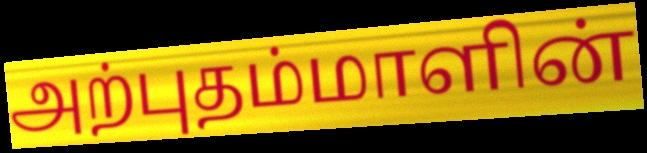
அற்புதம்மாளின்